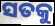
ସତକୁ